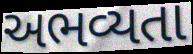
અભવ્યતા